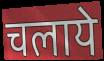
चलाये